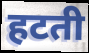
हटती